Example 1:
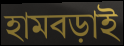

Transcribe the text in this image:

হামবড়াই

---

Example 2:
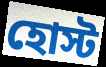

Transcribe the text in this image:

হোস্ট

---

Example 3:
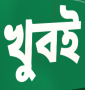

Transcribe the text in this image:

খুবই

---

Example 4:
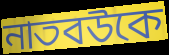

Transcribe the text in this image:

নাতবউকে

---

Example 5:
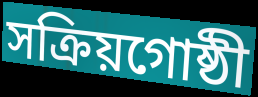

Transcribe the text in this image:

সক্রিয়গোষ্ঠী